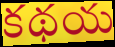
కథయ